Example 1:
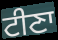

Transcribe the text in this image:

ਟੀਣਾ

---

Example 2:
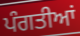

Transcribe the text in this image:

ਪੰਗਤੀਆਂ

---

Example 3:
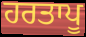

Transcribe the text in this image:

ਹਰਤਾਪੂ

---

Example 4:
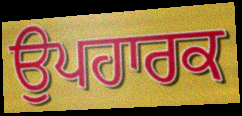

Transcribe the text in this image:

ਉਪਹਾਰਕ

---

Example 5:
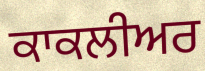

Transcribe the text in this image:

ਕਾਕਲੀਅਰ